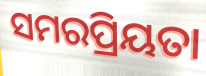
ସମରପ୍ରିୟତା